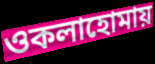
ওকলাহোমায়